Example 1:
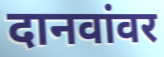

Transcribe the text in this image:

दानवांवर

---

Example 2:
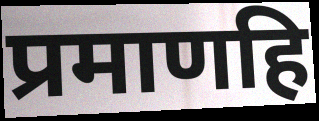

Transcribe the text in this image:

प्रमाणहि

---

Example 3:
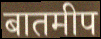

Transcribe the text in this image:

बातमीप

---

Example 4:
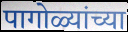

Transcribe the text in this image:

पागोळ्यांच्या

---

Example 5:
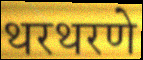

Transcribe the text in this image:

थरथरणे